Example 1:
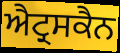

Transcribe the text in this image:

ਐਟ੍ਰਸਕੈਨ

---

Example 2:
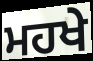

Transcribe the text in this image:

ਮਹਖੇ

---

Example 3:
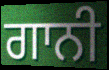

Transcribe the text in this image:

ਗਾਨੀ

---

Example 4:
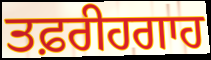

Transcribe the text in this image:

ਤਫ਼ਰੀਹਗਾਹ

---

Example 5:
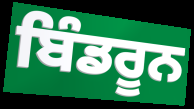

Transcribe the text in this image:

ਬਿੰਡਰੂਨ